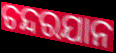
ଚନ୍ଦରଯାନ